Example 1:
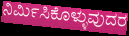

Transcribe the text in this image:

ನಿರ್ಮಿಸಿಕೊಳ್ಳುವುದರ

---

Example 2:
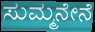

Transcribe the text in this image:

ಸುಮ್ಮನೇನೆ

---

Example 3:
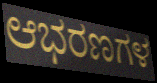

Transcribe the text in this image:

ಆಭರಣಗಳ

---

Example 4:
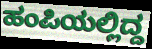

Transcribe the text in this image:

ಹಂಪಿಯಲ್ಲಿದ್ದ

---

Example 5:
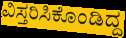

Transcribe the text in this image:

ವಿಸ್ತರಿಸಿಕೊಂಡಿದ್ದ